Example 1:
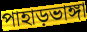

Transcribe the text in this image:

পাহাড়ভাঙ্গা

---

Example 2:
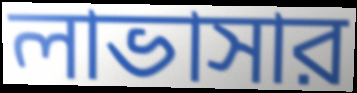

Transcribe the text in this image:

লাভাসার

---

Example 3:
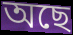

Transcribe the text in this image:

অছে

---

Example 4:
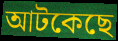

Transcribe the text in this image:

আটকেছে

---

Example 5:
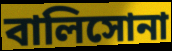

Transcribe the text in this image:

বালিসোনা